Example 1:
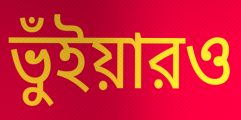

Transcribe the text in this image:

ভুঁইয়ারও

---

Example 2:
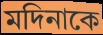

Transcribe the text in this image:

মদিনাকে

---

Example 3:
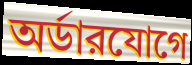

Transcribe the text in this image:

অর্ডারযোগে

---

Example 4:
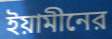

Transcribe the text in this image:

ইয়ামীনের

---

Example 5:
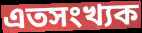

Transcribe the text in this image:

এতসংখ্যক